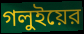
গলুইয়ের